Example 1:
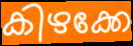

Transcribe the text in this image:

കിഴക്കേ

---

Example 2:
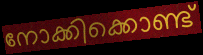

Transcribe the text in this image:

നോക്കിക്കൊണ്ട്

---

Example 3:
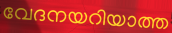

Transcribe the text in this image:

വേദനയറിയാത്ത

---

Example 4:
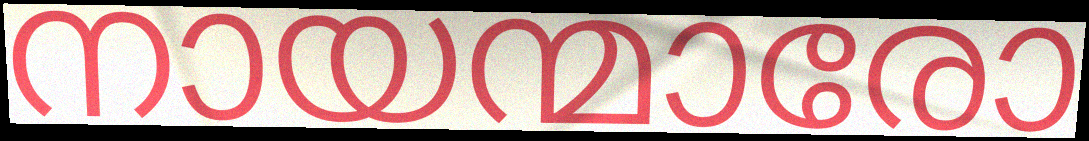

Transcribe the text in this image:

നായന്മാരോ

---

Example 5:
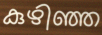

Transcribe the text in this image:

കുഴിഞ്ഞ